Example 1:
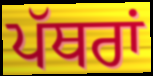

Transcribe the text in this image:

ਪੱਥਰਾਂ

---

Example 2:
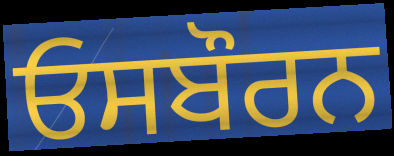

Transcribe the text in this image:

ਓਸਬੌਰਨ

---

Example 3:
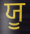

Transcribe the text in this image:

ਯੂ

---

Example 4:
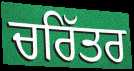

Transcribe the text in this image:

ਚਰਿੱਤਰ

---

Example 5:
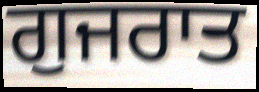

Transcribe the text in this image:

ਗੁਜਰਾਤ